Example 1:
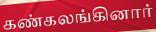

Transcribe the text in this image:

கண்கலங்கினார்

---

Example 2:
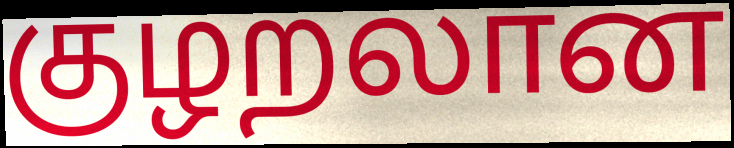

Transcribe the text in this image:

குழறலான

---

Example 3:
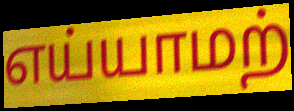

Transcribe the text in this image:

எய்யாமற்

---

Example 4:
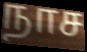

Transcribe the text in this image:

நாச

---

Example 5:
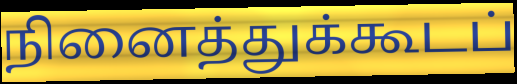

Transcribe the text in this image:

நினைத்துக்கூடப்